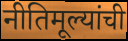
नीतिमूल्यांची